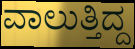
ವಾಲುತ್ತಿದ್ದ